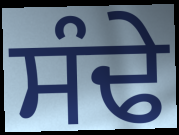
ਸੰਢੇ